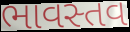
ભાવસ્તવ